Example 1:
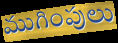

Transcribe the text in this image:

ముగింపులు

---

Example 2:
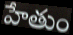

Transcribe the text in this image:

హేతుం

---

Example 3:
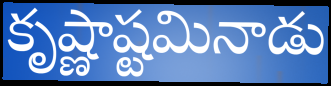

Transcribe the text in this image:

కృష్ణాష్టమినాడు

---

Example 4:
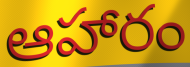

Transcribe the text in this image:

ఆహారం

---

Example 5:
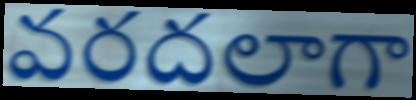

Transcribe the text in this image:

వరదలాగా